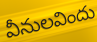
వీనులవిందు